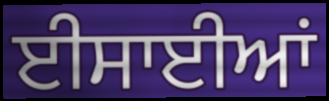
ਈਸਾਈਆਂ